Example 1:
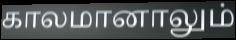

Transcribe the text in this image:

காலமானாலும்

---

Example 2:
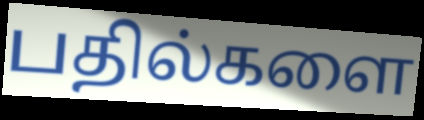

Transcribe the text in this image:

பதில்களை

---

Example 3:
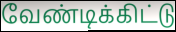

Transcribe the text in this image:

வேண்டிக்கிட்டு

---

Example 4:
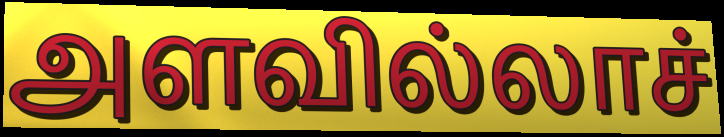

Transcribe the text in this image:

அளவில்லாச்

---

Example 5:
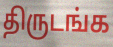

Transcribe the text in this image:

திருடங்க